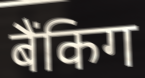
बैंकिग